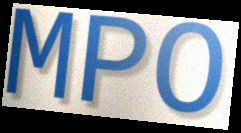
MPO